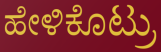
ಹೇಳಿಕೊಟ್ರು